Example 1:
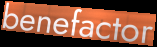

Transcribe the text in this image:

benefactor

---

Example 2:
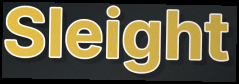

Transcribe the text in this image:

Sleight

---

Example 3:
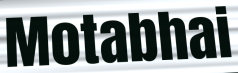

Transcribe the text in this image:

Motabhai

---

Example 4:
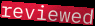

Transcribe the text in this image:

reviewed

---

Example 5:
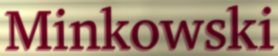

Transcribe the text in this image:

Minkowski